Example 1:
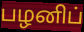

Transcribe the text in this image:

பழனிப்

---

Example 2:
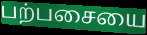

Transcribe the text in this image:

பற்பசையை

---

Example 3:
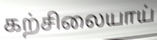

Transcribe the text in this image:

கற்சிலையாய்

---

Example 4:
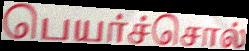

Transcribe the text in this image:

பெயர்ச்சொல்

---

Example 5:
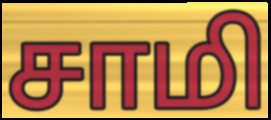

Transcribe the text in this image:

சாமி